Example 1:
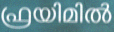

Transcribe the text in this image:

ഫ്രയിമിൽ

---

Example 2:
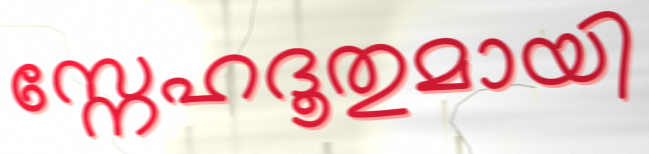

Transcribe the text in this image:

സ്നേഹദൂതുമായി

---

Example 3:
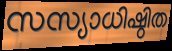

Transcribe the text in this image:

സസ്യാധിഷ്ഠിത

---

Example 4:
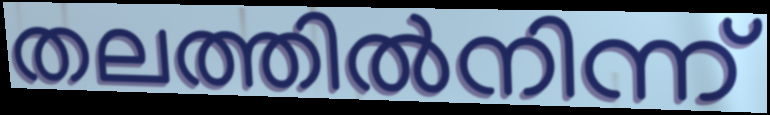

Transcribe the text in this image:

തലത്തിൽനിന്ന്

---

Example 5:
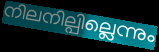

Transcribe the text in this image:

നിലനില്പില്ലെന്നും